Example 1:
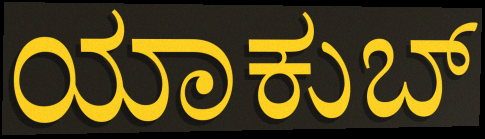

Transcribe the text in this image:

ಯಾಕುಬ್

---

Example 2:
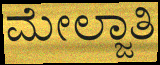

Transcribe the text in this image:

ಮೇಲ್ಜಾತಿ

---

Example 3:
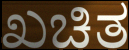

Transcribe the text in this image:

ಖಚಿತ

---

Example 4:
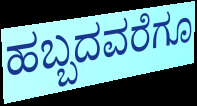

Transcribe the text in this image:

ಹಬ್ಬದವರೆಗೂ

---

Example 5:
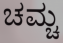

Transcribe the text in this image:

ಚಮ್ಚ